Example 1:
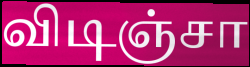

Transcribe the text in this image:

விடிஞ்சா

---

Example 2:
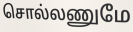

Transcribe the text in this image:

சொல்லணுமே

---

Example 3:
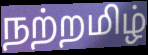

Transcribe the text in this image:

நற்றமிழ்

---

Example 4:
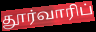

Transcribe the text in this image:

தூர்வாரிப்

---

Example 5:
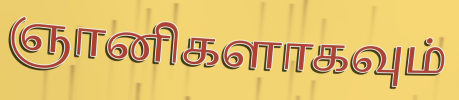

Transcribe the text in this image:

ஞானிகளாகவும்